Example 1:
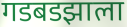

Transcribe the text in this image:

गडबडझाला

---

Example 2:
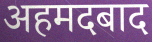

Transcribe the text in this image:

अहमदबाद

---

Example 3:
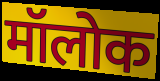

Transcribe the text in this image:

मॉलोक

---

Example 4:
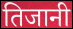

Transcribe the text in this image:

तिजानी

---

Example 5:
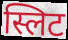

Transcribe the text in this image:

स्लिट